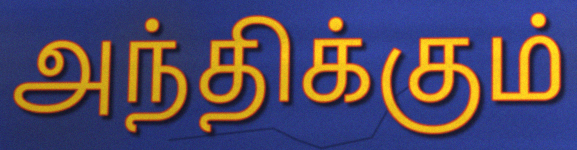
அந்திக்கும்